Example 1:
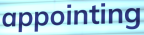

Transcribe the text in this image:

appointing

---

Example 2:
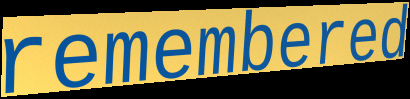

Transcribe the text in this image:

remembered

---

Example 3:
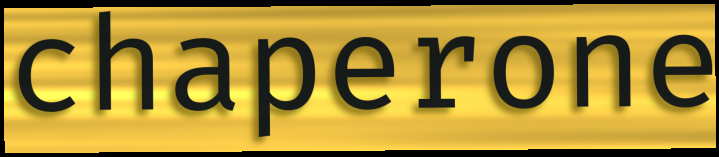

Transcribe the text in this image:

chaperone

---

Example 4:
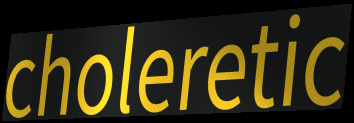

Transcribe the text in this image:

choleretic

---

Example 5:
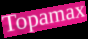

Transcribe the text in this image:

Topamax